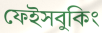
ফেইসবুকিং